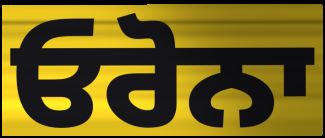
ਓਰੋਨਾ